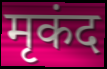
मृकंद